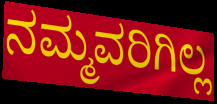
ನಮ್ಮವರಿಗಿಲ್ಲ